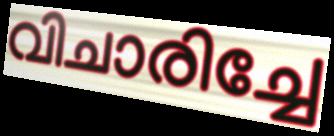
വിചാരിച്ചേ